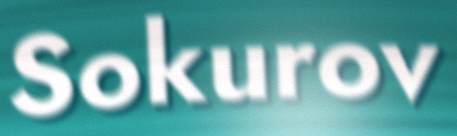
Sokurov